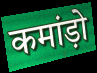
कमांड़ो